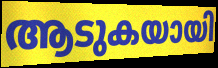
ആടുകയായി